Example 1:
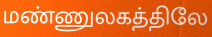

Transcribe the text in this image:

மண்ணுலகத்திலே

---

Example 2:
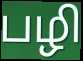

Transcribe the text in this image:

பழி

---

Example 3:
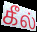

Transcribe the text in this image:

கீல்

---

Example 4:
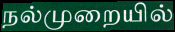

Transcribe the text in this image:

நல்முறையில்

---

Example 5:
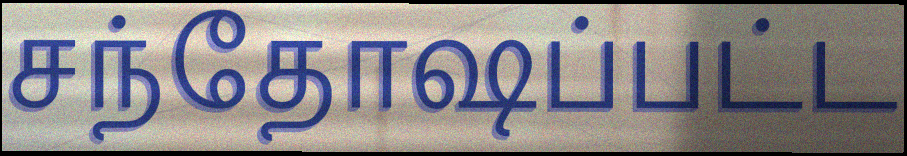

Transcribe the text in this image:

சந்தோஷப்பட்ட